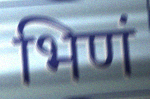
भिणं